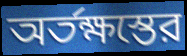
অর্তক্ষস্তের